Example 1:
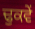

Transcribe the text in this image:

ਢੁਕਵੇਂ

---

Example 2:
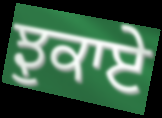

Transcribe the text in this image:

ਝੁਕਾਏ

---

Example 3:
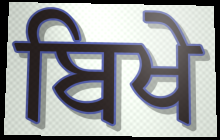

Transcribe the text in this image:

ਬਿਖੇ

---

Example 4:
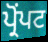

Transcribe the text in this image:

ਪ੍ਰੋਂਪਟ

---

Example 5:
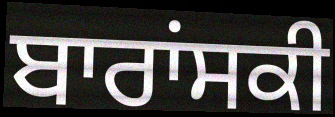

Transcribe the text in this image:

ਬਾਰਾਂਸਕੀ